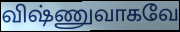
விஷ்ணுவாகவே